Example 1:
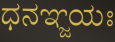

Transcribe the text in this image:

ಧನಞ್ಜಯಃ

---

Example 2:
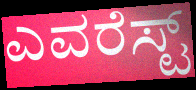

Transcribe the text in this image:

ಎವರೆಸ್ಟ್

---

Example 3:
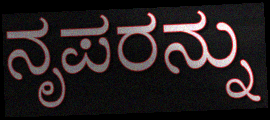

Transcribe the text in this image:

ನೃಪರನ್ನು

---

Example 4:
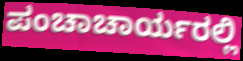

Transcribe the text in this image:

ಪಂಚಾಚಾರ್ಯರಲ್ಲಿ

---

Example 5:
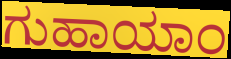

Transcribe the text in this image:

ಗುಹಾಯಾಂ